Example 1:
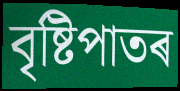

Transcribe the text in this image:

বৃষ্টিপাতৰ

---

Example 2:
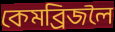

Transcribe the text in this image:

কেমব্ৰিজলৈ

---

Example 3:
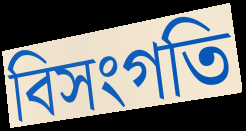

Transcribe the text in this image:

বিসংগতি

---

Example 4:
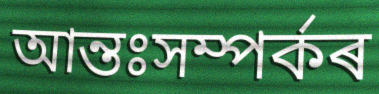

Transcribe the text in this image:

আন্তঃসম্পৰ্কৰ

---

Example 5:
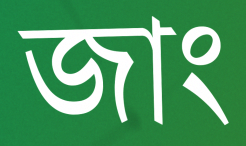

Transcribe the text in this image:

জাং